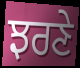
ਝਰਣੇ